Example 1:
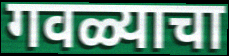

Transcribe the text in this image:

गवळ्याचा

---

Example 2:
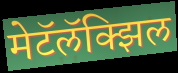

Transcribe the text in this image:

मेटॅलॅक्झिल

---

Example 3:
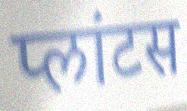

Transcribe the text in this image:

प्लांटस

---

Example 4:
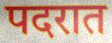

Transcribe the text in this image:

पदरात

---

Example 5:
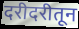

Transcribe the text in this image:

दरीदरीतून